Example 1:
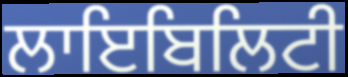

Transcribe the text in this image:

ਲਾਇਬਿਲਿਟੀ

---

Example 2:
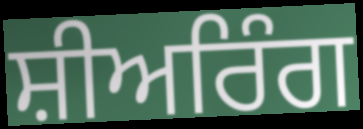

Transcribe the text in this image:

ਸ਼ੀਅਰਿੰਗ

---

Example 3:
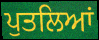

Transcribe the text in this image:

ਪੁਤਲਿਆਂ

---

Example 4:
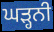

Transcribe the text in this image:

ਘੜ੍ਹਨੀ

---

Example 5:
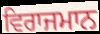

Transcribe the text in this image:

ਵਿਰਾਜਮਾਨ